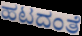
ಹಟದಂತೆ